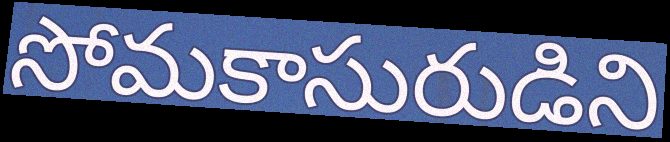
సోమకాసురుడిని